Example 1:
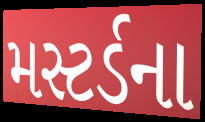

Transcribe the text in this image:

મસ્ટર્ડના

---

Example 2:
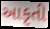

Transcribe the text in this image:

આકૃતી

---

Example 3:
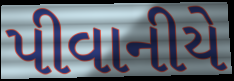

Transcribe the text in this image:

પીવાનીયે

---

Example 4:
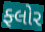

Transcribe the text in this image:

ફ્લોર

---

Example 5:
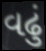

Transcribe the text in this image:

વઢું